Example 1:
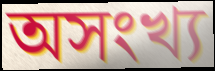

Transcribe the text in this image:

অসংখ্য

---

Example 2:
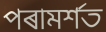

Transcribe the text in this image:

পৰামৰ্শত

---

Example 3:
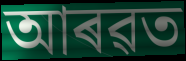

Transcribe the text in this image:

আৰৱত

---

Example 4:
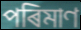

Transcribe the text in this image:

পৰিমাণ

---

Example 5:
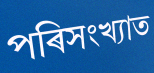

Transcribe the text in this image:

পৰিসংখ্যাত